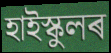
হাইস্কুলৰ